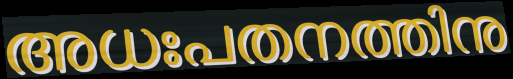
അധഃപതനത്തിനു